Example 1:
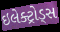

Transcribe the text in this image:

ઇલેક્ટ્રોડ્સ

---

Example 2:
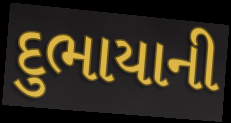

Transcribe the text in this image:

દુભાયાની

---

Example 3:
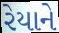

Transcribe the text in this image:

રેયાને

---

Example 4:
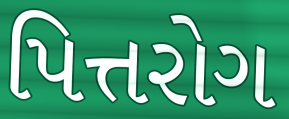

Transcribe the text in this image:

પિત્તરોગ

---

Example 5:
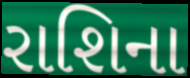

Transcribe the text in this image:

રાશિના